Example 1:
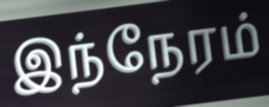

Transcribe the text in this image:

இந்நேரம்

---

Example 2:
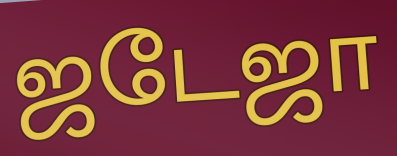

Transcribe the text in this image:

ஜடேஜா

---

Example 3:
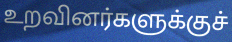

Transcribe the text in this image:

உறவினர்களுக்குச்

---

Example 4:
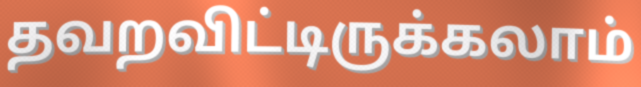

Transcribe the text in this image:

தவறவிட்டிருக்கலாம்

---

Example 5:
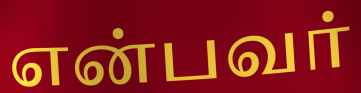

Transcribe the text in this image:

என்பவர்